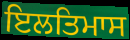
ਇਲਤਿਮਾਸ